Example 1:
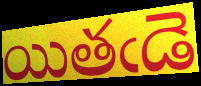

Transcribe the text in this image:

యితఁడె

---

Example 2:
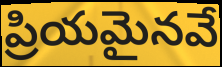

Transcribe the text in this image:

ప్రియమైనవే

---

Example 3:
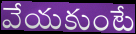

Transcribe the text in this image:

వేయకుంటే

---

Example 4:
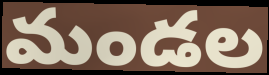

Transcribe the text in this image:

మండల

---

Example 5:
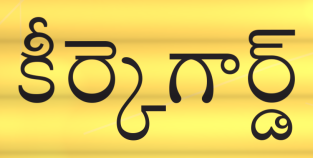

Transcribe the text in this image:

కీర్కెగార్డ్